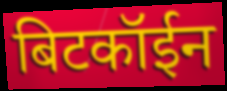
बिटकॉईन